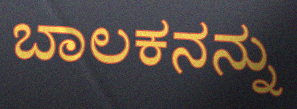
ಬಾಲಕನನ್ನು